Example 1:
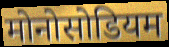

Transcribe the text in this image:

मोनोसोडियम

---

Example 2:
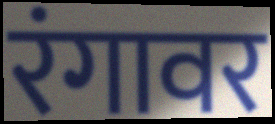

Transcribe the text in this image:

रंगावर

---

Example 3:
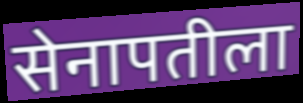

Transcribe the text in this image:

सेनापतीला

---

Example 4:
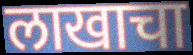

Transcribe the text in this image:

लाखाचा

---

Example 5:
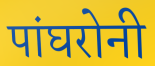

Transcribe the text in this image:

पांघरोनी